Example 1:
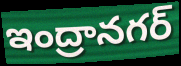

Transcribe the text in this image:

ఇంద్రానగర్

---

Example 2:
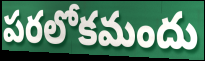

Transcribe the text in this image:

పరలోకమందు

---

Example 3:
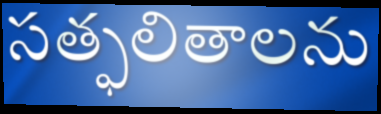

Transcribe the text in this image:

సత్ఫలితాలను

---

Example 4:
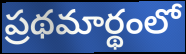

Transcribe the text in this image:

ప్రథమార్థంలో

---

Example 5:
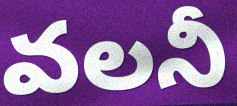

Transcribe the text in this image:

వలనీ